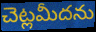
చెట్లమీదను